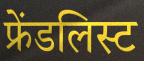
फ्रेंडलिस्ट